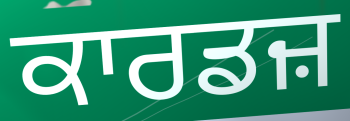
ਕਾਰਡਜ਼